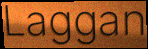
Laggan